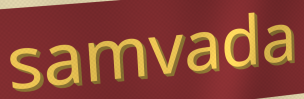
samvada